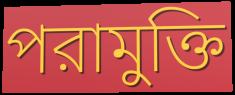
পরামুক্তি